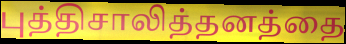
புத்திசாலித்தனத்தை